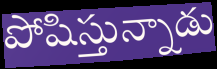
పోషిస్తున్నాడు